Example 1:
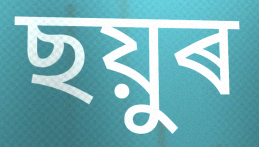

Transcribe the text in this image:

ছয়ুৰ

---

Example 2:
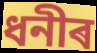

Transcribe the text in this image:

ধনীৰ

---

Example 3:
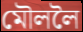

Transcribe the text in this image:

মৌললৈ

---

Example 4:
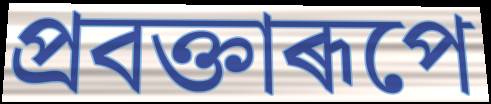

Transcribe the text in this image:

প্ৰবক্তাৰূপে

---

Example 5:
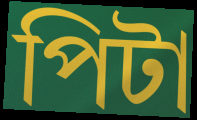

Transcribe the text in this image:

পিটা